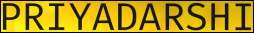
PRIYADARSHI